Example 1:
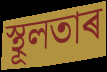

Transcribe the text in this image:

স্থূলতাৰ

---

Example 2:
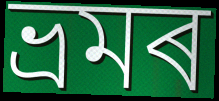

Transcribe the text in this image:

ভ্ৰমৰ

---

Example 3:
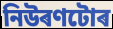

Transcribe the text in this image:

নিউৰণটোৰ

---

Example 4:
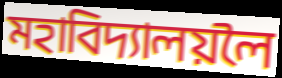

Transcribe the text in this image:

মহাবিদ্যালয়লৈ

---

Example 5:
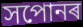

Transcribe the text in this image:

সপোনৰ